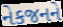
નેકજનને